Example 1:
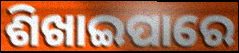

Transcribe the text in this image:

ଶିଖାଇପାରେ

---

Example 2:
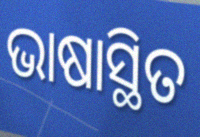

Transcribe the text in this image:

ଭାଷାସ୍ଥିତ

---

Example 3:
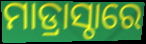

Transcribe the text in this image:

ମାଡ୍ରାସ୍ଠାରେ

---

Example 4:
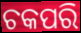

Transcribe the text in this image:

ଚକପରି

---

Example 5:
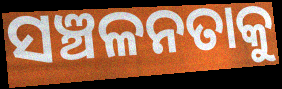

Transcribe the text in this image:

ସଞ୍ଚଳନତାକୁ